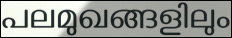
പലമുഖങ്ങളിലും